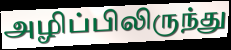
அழிப்பிலிருந்து